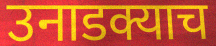
उनाडक्याच